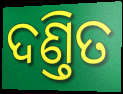
ଦଣ୍ତିତ